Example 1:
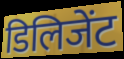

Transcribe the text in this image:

डिलिजेंट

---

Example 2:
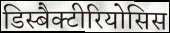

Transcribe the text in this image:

डिस्बैक्टीरियोसिस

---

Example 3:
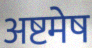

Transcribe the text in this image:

अष्टमेष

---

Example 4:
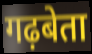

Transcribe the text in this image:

गढ़बेता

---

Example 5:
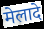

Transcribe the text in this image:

मेलादे